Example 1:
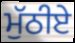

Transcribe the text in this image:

ਮੁੱਠੀਏ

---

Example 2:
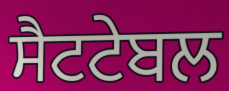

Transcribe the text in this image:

ਸੈਟਟੇਬਲ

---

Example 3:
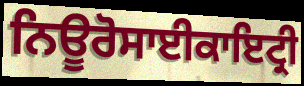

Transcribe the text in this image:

ਨਿਊਰੋਸਾਈਕਾਇਟ੍ਰੀ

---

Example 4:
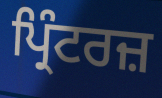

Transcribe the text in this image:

ਪ੍ਰਿੰਟਰਜ਼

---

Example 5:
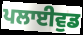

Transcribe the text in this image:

ਪਲਾਈਵੁਡ